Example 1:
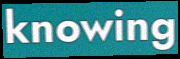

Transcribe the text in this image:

knowing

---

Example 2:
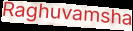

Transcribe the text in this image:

Raghuvamsha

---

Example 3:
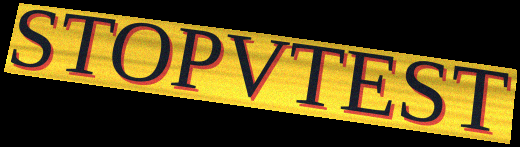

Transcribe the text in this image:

STOPVTEST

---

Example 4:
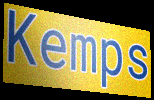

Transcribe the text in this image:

Kemps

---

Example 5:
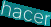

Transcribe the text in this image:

hacer